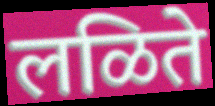
लळिते